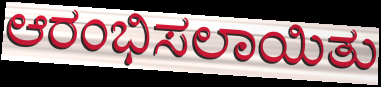
ಆರಂಭಿಸಲಾಯಿತು